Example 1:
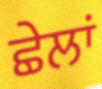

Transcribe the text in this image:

ਛੇਲਾਂ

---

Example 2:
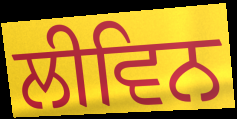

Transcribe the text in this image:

ਲੀਵਿਨ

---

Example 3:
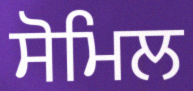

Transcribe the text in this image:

ਸੋਮਿਲ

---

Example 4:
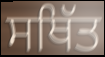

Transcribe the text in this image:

ਸਥਿੱਤ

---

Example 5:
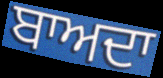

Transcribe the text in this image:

ਬਾਅਦਾ